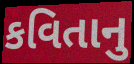
કવિતાનુ